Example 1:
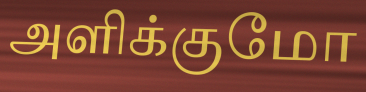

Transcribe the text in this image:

அளிக்குமோ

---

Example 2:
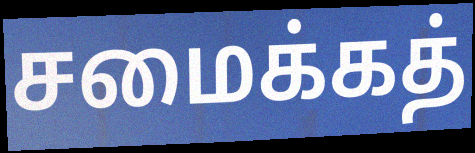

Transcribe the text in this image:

சமைக்கத்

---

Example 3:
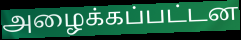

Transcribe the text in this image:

அழைக்கப்பட்டன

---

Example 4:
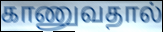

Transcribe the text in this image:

காணுவதால்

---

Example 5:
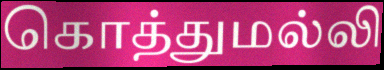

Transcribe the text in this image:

கொத்துமல்லி